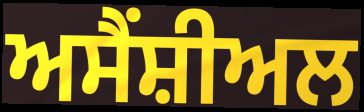
ਅਸੈਂਸ਼ੀਅਲ